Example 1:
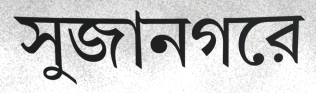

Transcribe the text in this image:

সুজানগরে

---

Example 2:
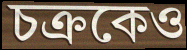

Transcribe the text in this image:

চক্রকেও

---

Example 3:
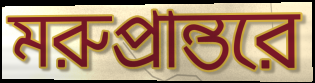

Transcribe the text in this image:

মরুপ্রান্তরে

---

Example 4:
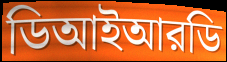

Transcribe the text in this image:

ডিআইআরডি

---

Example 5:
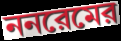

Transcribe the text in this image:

ননরেমের